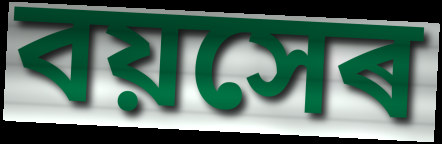
বয়সেৰ